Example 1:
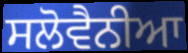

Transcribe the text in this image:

ਸਲੋਵੈਨੀਆ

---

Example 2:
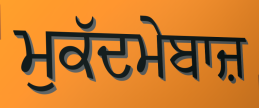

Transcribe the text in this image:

ਮੁਕੱਦਮੇਬਾਜ਼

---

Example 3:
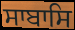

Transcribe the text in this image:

ਸਾਬਾਸਿ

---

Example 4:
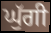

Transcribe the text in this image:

ਘੁੱਗੀ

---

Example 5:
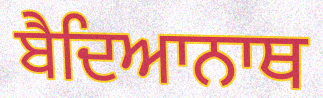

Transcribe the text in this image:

ਬੈਦਿਆਨਾਥ